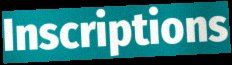
Inscriptions